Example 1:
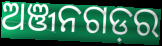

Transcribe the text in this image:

ଅଞ୍ଜନଗଡ଼ର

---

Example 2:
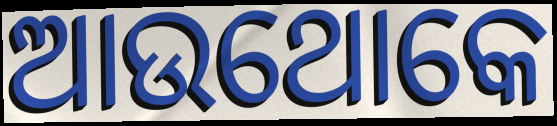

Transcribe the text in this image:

ଆଉଥୋକେ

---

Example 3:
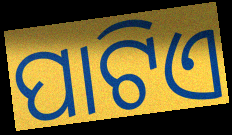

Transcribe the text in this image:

ପାଟିଏ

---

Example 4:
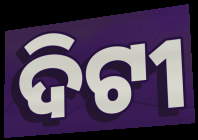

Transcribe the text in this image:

ଦିଟୀ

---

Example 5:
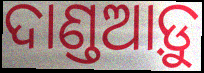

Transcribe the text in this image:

ଦାଣ୍ଡଆଡ଼ୁ